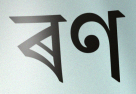
ৰণ